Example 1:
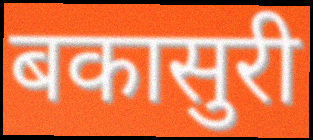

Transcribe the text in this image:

बकासुरी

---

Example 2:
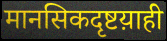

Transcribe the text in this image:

मानसिकदृष्टय़ाही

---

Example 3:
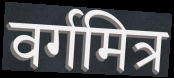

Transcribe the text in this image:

वर्गमित्र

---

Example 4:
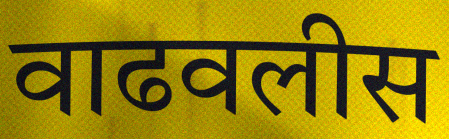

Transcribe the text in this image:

वाढवलीस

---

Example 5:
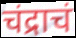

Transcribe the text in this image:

चंद्राचं